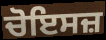
ਚੋਇਸਜ਼